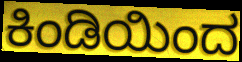
ಕಿಂಡಿಯಿಂದ